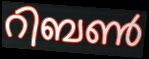
റിബൺ